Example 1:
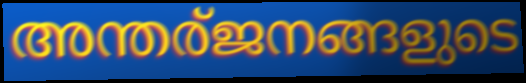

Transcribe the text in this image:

അന്തര്ജനങ്ങളുടെ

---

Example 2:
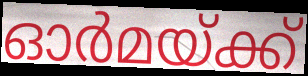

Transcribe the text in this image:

ഓർമയ്ക്ക്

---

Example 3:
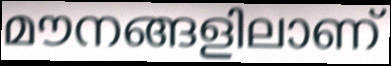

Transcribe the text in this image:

മൗനങ്ങളിലാണ്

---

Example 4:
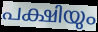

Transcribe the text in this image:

പക്ഷിയും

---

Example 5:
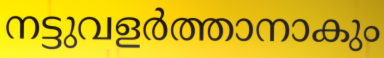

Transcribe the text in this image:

നട്ടുവളർത്താനാകും